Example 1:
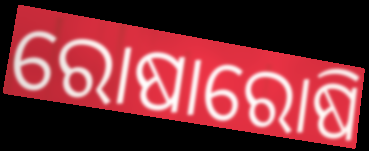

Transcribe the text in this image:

ରୋଷାରୋଷି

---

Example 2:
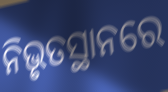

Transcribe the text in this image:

ନିଭୃତସ୍ଥାନରେ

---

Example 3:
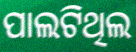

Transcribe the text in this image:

ପାଲଟିଥିଲ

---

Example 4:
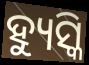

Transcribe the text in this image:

ହ୍ୟୁସ୍କି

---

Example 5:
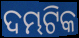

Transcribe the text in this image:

ଦମ୍ଭଟିକ